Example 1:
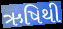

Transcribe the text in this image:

ઋષિથી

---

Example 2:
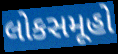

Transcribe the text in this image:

લોકસમૂહો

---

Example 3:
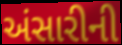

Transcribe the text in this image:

અંસારીની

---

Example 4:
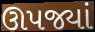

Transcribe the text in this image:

ઊપજ્યાં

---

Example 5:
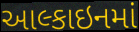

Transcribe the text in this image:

આલ્કાઇનમાં